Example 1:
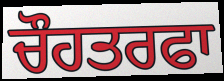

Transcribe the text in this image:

ਚੌਹਤਰਫਾ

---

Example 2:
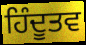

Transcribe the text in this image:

ਹਿੰਦੂਤਵ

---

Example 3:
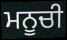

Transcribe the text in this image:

ਮਨੂਚੀ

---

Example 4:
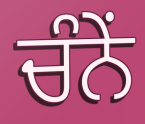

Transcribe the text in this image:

ਚੰਨੇਂ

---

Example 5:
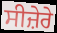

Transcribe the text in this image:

ਸੀਜ਼ੇਰੇ